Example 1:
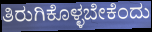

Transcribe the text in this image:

ತಿರುಗಿಕೊಳ್ಳಬೇಕೆಂದು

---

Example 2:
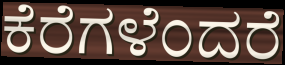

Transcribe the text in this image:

ಕೆರೆಗಳೆಂದರೆ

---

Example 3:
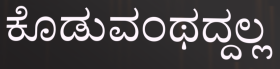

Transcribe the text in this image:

ಕೊಡುವಂಥದ್ದಲ್ಲ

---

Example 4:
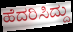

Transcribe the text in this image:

ಹೆದರಿಸಿದ್ದು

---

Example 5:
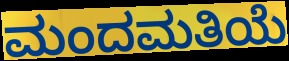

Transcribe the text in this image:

ಮಂದಮತಿಯೆ